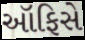
ઑફિસે